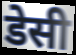
डेसी